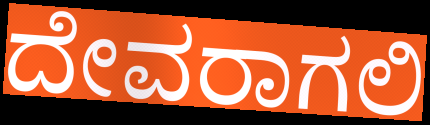
ದೇವರಾಗಲಿ